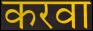
करवा